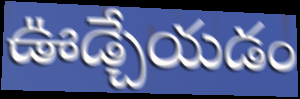
ఊడ్చేయడం